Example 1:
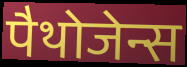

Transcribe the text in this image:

पैथोजेन्स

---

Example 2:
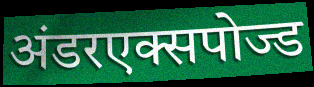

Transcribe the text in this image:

अंडरएक्सपोज्ड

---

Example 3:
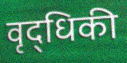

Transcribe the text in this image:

वृद्धिकी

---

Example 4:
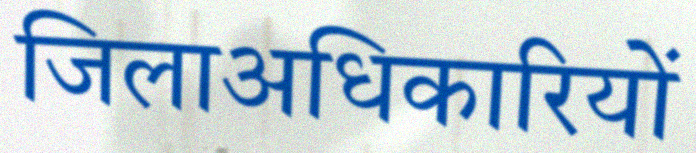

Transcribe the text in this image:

जिलाअधिकारियों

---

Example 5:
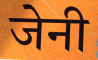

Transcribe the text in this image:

जेनी